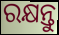
ରକ୍ଷନ୍ତୁ